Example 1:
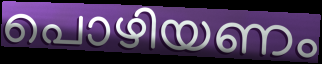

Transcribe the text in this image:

പൊഴിയണം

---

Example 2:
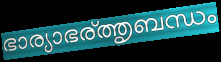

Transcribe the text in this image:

ഭാര്യാഭര്ത്തൃബന്ധം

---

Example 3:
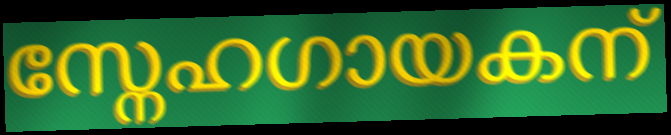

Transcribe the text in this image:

സ്നേഹഗായകന്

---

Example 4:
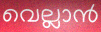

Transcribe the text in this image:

വെല്ലാൻ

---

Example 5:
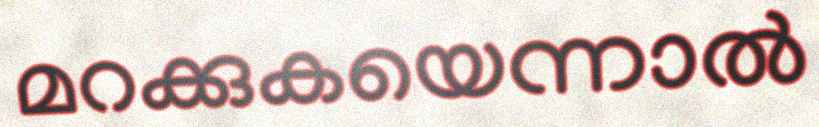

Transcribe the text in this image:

മറക്കുകയെന്നാൽ